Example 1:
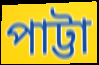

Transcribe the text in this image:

পাট্টা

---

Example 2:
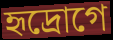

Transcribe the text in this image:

হৃদ্রোগে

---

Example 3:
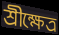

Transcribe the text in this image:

শ্রীক্ষেত্র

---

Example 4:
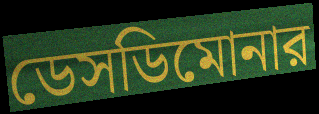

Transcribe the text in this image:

ডেসডিমোনার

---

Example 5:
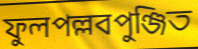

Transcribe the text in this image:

ফুলপল্লবপুঞ্জিত